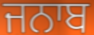
ਜਨਾਬ